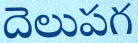
దెలుపగ